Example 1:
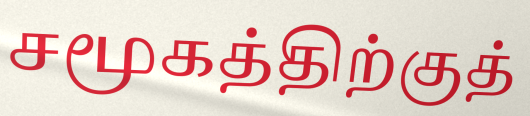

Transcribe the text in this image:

சமூகத்திற்குத்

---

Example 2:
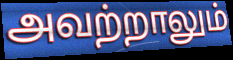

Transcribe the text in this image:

அவற்றாலும்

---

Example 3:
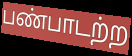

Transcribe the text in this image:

பண்பாடற்ற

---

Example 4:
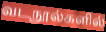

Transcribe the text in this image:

வடநூல்களில்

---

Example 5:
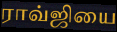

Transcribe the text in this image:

ராவ்ஜியை